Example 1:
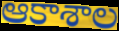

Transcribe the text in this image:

ఆకాశాల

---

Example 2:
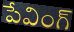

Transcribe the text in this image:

పేవింగ్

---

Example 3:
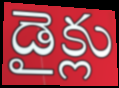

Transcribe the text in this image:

డైక్లు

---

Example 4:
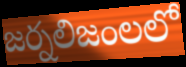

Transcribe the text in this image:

జర్నలిజంలలో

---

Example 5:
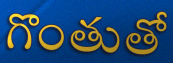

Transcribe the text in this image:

గొంతుతో